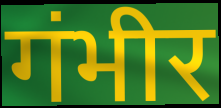
गंभीर